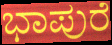
ಭಾಪುರೆ